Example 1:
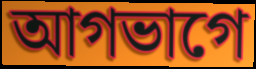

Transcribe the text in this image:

আগভাগে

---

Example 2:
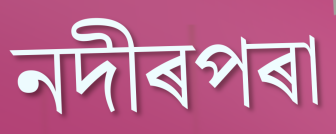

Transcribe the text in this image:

নদীৰপৰা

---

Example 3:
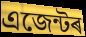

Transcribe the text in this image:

এজেন্টৰ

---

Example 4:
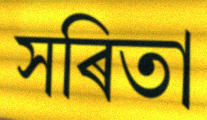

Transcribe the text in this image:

সৰিতা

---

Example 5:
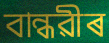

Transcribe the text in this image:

বান্ধৱীৰ